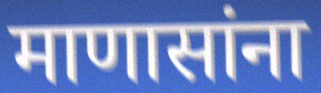
माणासांना